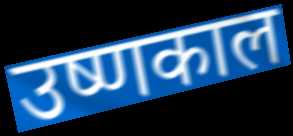
उष्णकाल